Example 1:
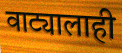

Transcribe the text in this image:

वाट्यालाही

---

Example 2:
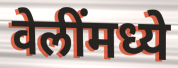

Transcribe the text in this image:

वेलींमध्ये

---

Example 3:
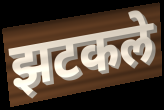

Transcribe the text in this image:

झटकले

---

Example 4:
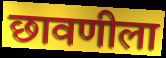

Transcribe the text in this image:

छावणीला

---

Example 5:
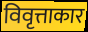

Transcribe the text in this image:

विवृत्ताकार